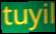
tuyil